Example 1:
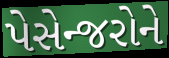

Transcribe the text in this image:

પેસેન્જરોને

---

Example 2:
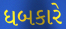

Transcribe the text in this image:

ધબકારે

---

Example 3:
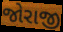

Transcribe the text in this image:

જોરાજી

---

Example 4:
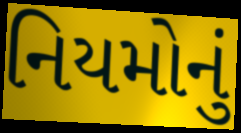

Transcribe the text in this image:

નિયમોનું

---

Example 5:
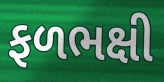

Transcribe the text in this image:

ફળભક્ષી